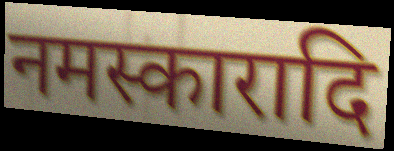
नमस्कारादि